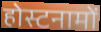
होस्टनामों